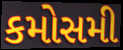
કમોસમી